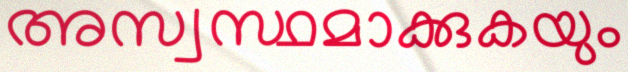
അസ്വസ്ഥമാക്കുകയും